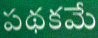
పథకమే